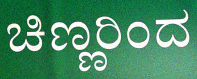
ಚಿಣ್ಣರಿಂದ